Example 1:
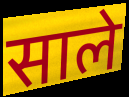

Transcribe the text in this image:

साले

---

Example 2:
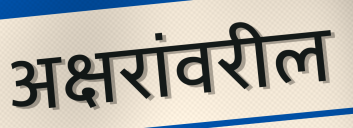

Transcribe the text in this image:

अक्षरांवरील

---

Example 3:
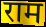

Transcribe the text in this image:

राम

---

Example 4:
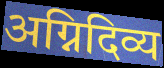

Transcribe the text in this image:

अग्निदिव्य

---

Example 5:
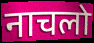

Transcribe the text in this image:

नाचलो